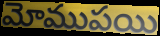
మోముపయి